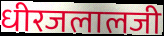
धीरजलालजी